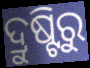
ଦ୍ରୁଷ୍ଟିରୁ